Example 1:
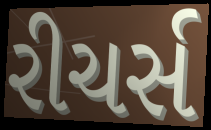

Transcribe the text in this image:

રીચર્સ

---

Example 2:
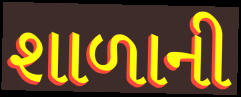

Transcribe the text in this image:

શાળાની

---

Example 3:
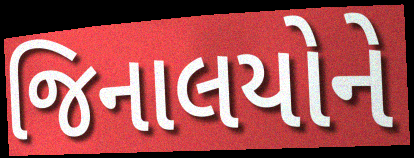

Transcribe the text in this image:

જિનાલયોને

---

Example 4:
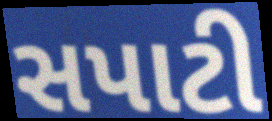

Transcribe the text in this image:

સપાટી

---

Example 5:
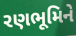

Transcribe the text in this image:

રણભૂમિને